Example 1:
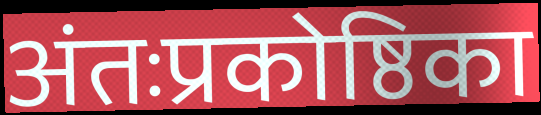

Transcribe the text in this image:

अंतःप्रकोष्ठिका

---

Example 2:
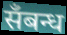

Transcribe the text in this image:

सँबन्ध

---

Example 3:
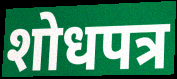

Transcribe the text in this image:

शोधपत्र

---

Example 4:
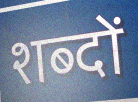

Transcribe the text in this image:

शब्‍दों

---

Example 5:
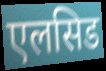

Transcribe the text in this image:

एलसिड